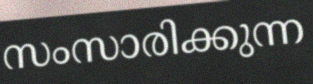
സംസാരിക്കുന്ന